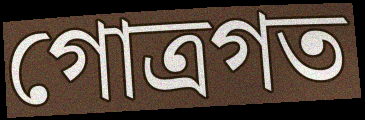
গোত্রগত